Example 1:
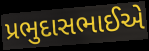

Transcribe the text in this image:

પ્રભુદાસભાઈએ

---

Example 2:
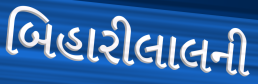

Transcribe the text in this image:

બિહારીલાલની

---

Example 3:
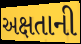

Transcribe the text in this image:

અક્ષતાની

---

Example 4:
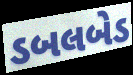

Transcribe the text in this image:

ડબલબેડ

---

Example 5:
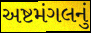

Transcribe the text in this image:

અષ્ટમંગલનું